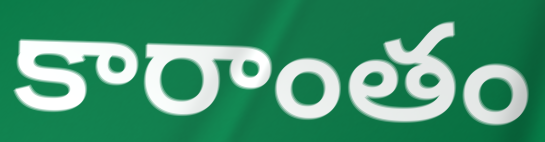
కారాంతం